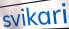
svikari